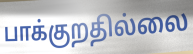
பாக்குறதில்லை